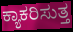
ಕ್ಯಾಕರಿಸುತ್ತ